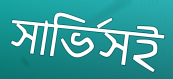
সার্ভিসই